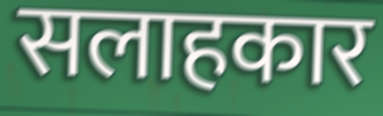
सलाहकार